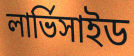
লার্ভিসাইড